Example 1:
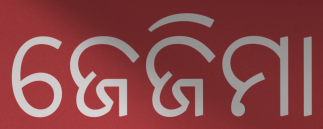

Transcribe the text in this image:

ଜେଜିମା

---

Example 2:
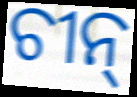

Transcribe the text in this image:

ଚୀନ୍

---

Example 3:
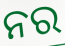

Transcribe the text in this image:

ନର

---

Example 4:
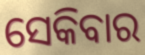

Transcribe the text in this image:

ସେକିବାର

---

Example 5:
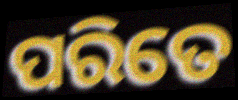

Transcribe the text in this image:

ପରିତେ